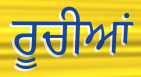
ਰੂਚੀਆਂ